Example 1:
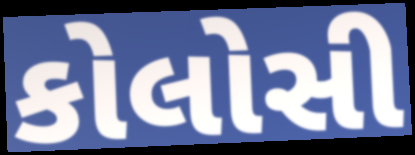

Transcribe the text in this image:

કોલોસી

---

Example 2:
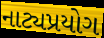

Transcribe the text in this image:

નાટ્યપ્રયોગ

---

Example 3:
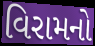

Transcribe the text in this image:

વિરામનો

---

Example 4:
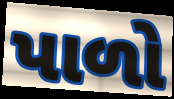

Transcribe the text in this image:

પાળો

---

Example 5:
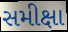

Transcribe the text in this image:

સમીક્ષા